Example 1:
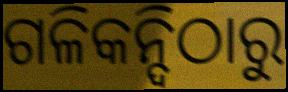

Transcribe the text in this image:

ଗଳିକନ୍ଦିଠାରୁ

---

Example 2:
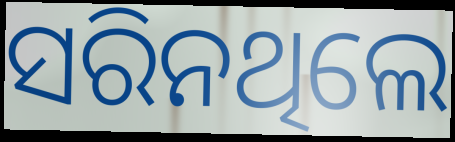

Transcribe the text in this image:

ସରିନଥିଲେ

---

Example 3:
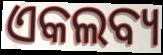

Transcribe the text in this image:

ଏକଲବ୍ୟ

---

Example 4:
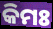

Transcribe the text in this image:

କିମଃ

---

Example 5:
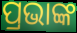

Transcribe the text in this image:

ପ୍ରଭାଙ୍କ